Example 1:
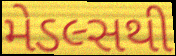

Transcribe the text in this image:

મેડલ્સથી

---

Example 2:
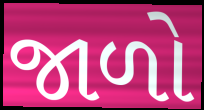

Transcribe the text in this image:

જાળો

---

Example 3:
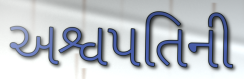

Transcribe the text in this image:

અશ્વપતિની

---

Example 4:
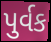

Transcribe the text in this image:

પુર્વક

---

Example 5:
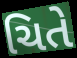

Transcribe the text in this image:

ચિતે